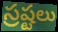
స్రష్టలు